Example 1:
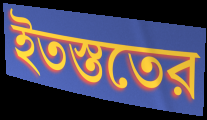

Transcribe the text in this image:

ইতস্ততের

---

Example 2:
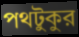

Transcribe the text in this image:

পথটুকুর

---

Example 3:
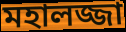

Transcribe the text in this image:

মহালজ্জা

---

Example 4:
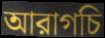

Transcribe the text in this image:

আরাগচি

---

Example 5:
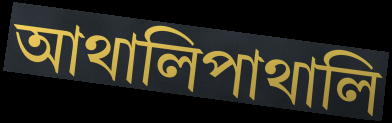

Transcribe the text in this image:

আথালিপাথালি